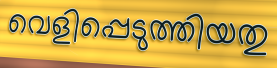
വെളിപ്പെടുത്തിയതു